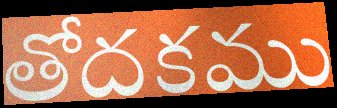
తోదకము